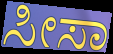
ಸೀಸಾ